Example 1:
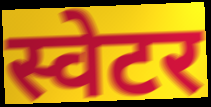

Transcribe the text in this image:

स्वेटर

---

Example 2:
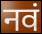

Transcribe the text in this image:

नवं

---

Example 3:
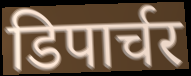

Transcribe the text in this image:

डिपार्चर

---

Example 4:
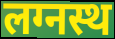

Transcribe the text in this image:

लग्नस्थ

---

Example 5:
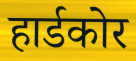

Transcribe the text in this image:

हार्डकोर